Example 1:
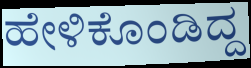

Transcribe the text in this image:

ಹೇಳಿಕೊಂಡಿದ್ದ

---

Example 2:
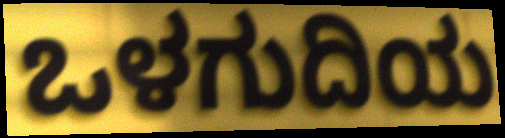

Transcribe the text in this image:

ಒಳಗುದಿಯ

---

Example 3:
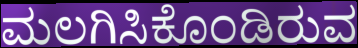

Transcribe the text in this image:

ಮಲಗಿಸಿಕೊಂಡಿರುವ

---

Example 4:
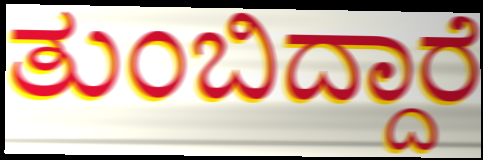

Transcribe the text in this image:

ತುಂಬಿದ್ದಾರೆ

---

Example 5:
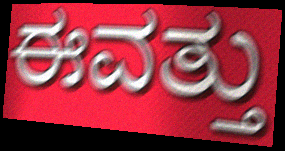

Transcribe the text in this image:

ಈವತ್ತು